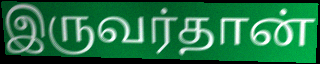
இருவர்தான்